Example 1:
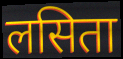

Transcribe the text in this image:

लसिता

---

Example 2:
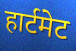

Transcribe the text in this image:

हार्टमेट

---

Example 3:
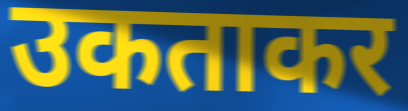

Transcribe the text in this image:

उकताकर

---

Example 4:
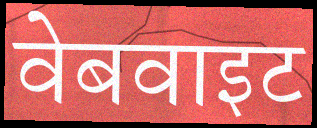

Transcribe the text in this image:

वेबवाइट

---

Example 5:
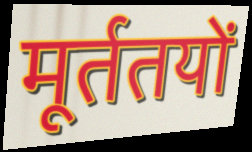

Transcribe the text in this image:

मूर्ततयों